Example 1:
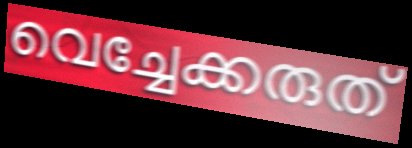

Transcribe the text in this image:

വെച്ചേക്കരുത്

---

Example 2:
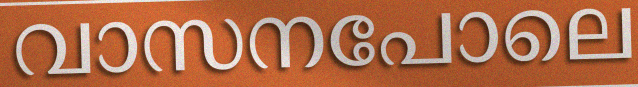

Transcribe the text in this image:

വാസനപോലെ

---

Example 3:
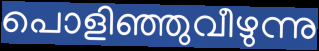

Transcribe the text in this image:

പൊളിഞ്ഞുവീഴുന്നു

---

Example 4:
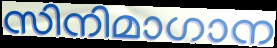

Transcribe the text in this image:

സിനിമാഗാന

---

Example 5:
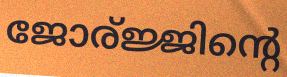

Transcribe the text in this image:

ജോര്ജ്ജിന്റെ